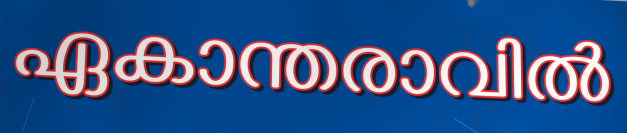
ഏകാന്തരാവിൽ